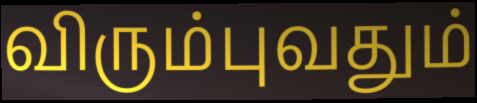
விரும்புவதும்